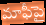
మాఫీపై